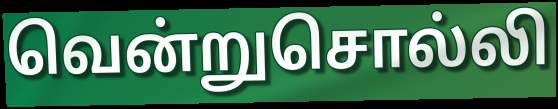
வென்றுசொல்லி